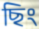
ছিং